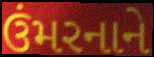
ઉંમરનાને